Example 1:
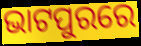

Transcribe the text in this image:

ଭାଟପୁରରେ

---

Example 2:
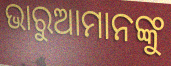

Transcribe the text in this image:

ଭାରୁଆମାନଙ୍କୁ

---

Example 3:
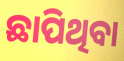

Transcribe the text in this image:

ଛାପିଥିବା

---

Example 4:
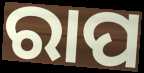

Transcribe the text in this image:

ରାପ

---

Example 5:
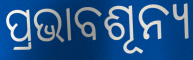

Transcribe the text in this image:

ପ୍ରଭାବଶୂନ୍ୟ